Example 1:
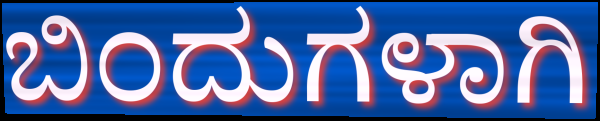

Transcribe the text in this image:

ಬಿಂದುಗಳಾಗಿ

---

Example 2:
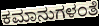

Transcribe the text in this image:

ಕಮಾನುಗಳಂತೆ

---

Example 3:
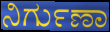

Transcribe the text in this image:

ನಿರ್ಗುಣಾ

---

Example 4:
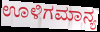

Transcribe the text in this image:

ಊಳಿಗಮಾನ್ಯ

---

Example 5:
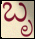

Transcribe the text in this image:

ಬೃ